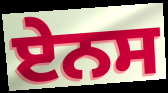
ਏਨਸ